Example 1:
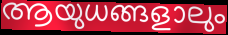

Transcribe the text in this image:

ആയുധങ്ങളാലും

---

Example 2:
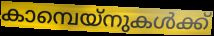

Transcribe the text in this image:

കാമ്പെയ്നുകൾക്ക്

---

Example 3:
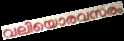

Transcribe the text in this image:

വലിയൊരവസരം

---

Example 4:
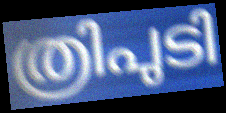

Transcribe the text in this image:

ത്രിപുടി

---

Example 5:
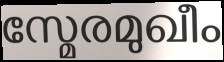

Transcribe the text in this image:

സ്മേരമുഖീം